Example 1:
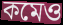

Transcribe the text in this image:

কমেও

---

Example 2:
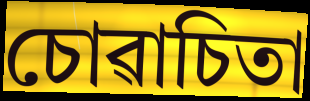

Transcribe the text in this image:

চোৱাচিতা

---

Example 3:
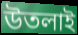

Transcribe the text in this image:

উতলাই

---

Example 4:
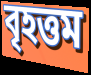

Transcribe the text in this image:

বৃহত্তম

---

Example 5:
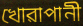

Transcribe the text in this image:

খোৱাপানী